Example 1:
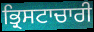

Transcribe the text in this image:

ਭ੍ਰਿਸਟਾਚਾਰੀ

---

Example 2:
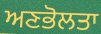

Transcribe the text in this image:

ਅਣਭੋਲਤਾ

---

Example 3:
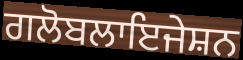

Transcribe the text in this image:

ਗਲੋਬਲਾਇਜੇਸ਼ਨ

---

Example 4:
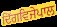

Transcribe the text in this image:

ਦਿੱਗਵਿਜੇਪਾਲ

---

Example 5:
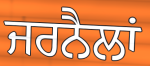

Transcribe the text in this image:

ਜਰਨੈਲਾਂ